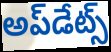
అప్‌డేట్స్